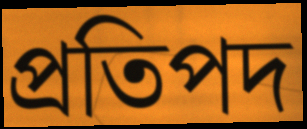
প্ৰতিপদ